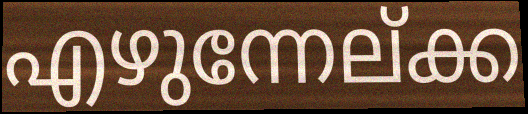
എഴുന്നേല്ക്ക